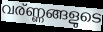
വര്ണ്ണങ്ങളുടെ